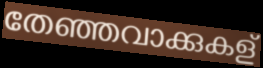
തേഞ്ഞവാക്കുകള്